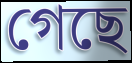
গেছে